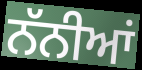
ਨੱਨੀਆਂ